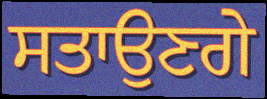
ਸਤਾਉਣਗੇ